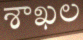
శాఖల